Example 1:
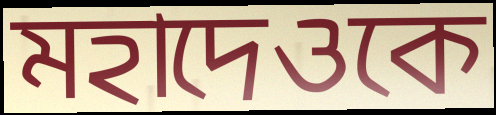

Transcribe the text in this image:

মহাদেওকে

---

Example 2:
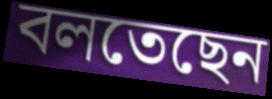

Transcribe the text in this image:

বলতেছেন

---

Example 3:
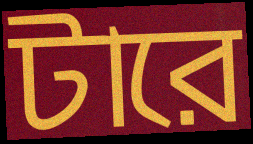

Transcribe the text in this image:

টারে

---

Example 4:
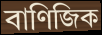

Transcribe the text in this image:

বাণিজিক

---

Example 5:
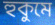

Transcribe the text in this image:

হুকুমে